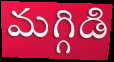
మగ్గిడి